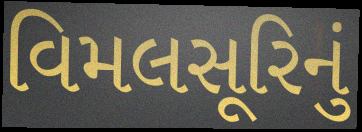
વિમલસૂરિનું